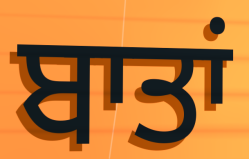
ਬਾਤਾਂ